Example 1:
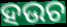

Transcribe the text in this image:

ହଉଚ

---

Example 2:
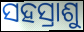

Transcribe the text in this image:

ସହସ୍ରାଶୁ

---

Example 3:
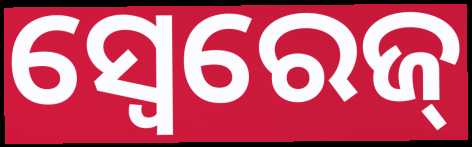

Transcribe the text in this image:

ସ୍ବେରେଜ୍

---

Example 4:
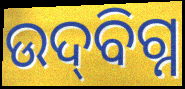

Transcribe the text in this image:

ଉଦ୍‍ବିଗ୍ନ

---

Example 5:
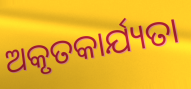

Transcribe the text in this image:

ଅକୃତକାର୍ଯ୍ୟତା